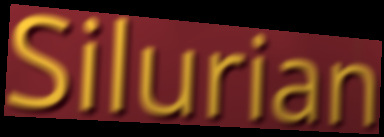
Silurian